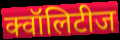
क्वॉलिटीज